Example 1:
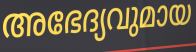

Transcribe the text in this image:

അഭേദ്യവുമായ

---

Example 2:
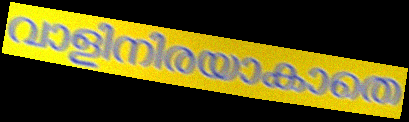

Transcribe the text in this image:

വാളിനിരയാകാതെ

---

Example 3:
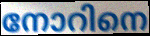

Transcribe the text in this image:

നോറിനെ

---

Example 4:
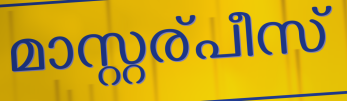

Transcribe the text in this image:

മാസ്റ്റര്പീസ്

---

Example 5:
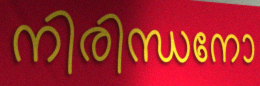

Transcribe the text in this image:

നിരിന്ധനോ